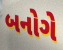
બનોગે